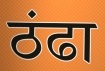
ठंढा